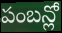
పంబన్లో